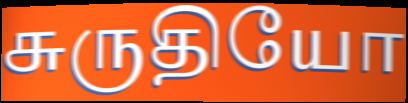
சுருதியோ